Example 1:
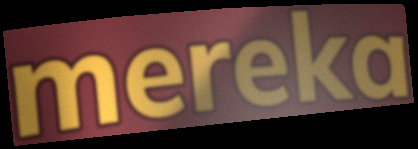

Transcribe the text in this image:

mereka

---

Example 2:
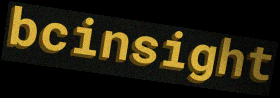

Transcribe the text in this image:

bcinsight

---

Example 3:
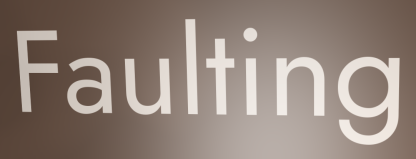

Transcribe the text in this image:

Faulting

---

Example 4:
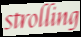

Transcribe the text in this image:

strolling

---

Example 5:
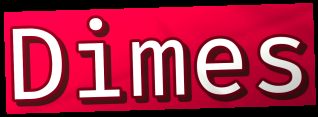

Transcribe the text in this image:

Dimes